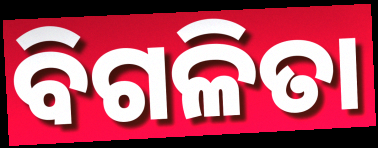
ବିଗଳିତା